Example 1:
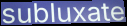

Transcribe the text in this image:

subluxate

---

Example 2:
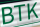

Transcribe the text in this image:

BTK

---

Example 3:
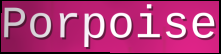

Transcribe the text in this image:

Porpoise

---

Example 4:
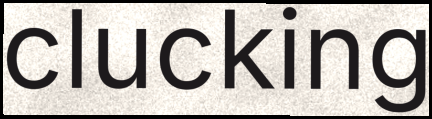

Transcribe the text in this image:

clucking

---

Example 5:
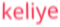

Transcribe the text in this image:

keliye